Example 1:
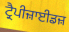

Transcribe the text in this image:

ਟ੍ਰੈਪੀਜ਼ਾਈਡਜ਼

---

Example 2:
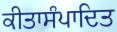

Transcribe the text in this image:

ਕੀਤਾਸੰਪਾਦਿਤ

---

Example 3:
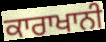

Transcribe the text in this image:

ਕਾਰਾਖਾਨੀ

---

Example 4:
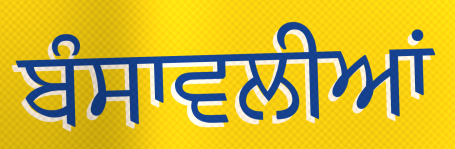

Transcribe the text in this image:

ਬੰਸਾਵਲੀਆਂ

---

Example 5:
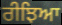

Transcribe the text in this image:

ਰੀਝਿਆ